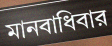
মানবাধিবার